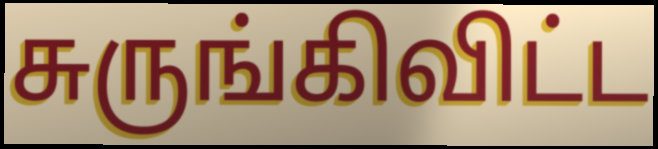
சுருங்கிவிட்ட